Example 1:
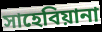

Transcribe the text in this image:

সাহেবিয়ানা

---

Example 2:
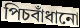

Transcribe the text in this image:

পিচবাঁধানো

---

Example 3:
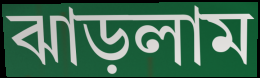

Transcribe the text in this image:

ঝাড়লাম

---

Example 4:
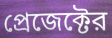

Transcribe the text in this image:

প্রেজেক্টের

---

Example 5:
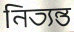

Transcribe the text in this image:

নিত্যন্ত